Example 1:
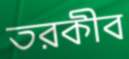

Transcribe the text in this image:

তরকীব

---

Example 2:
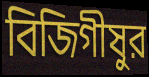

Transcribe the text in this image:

বিজিগীষুর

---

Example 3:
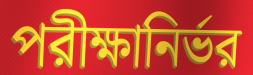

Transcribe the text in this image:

পরীক্ষানির্ভর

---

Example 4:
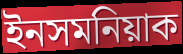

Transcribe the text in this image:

ইনসমনিয়াক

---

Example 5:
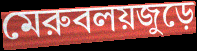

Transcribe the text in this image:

মেরুবলয়জুড়ে